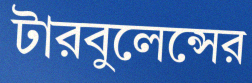
টারবুলেন্সের